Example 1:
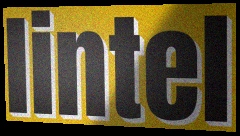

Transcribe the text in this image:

lintel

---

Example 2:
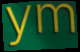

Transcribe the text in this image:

ym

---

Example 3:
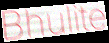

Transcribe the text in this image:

Bhulite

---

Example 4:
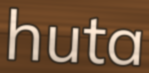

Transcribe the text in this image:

huta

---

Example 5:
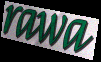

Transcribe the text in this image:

rawa